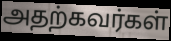
அதற்கவர்கள்